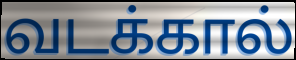
வடக்கால்